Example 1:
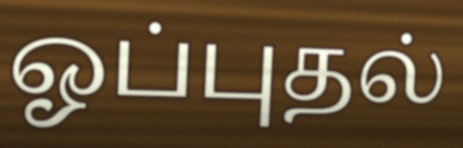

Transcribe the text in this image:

ஓப்புதல்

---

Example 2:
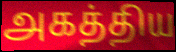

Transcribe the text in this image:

அகத்திய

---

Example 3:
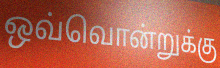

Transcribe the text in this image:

ஒவ்வொன்றுக்கு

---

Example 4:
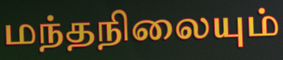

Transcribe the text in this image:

மந்தநிலையும்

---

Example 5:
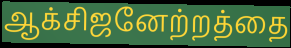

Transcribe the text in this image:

ஆக்சிஜனேற்றத்தை